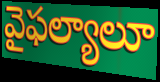
వైఫల్యాలూ